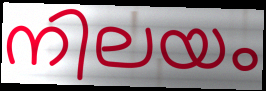
നിലയം